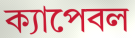
ক্যাপেবল